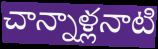
చాన్నాళ్లనాటి